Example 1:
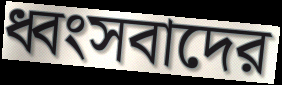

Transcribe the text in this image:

ধ্বংসবাদের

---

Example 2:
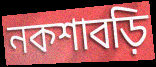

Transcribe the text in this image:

নকশাবড়ি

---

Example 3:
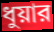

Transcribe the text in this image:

ধুয়ার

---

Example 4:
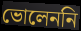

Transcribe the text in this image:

ভোলেননি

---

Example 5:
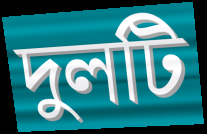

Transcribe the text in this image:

দুলটি